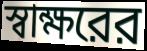
স্বাক্ষরের